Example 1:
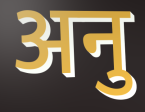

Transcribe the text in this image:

अनु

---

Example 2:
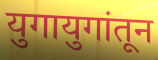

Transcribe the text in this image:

युगायुगांतून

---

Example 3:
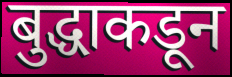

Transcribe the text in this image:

बुद्धाकडून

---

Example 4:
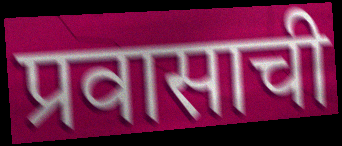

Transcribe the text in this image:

प्रवासाची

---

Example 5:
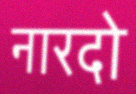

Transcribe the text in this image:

नारदो